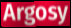
Argosy